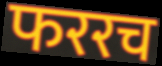
फररच